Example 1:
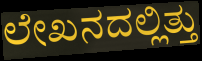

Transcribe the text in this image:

ಲೇಖನದಲ್ಲಿತ್ತು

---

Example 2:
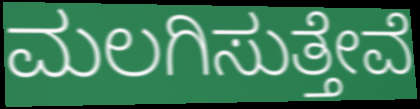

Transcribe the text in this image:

ಮಲಗಿಸುತ್ತೇವೆ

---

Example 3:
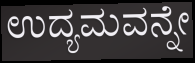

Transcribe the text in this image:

ಉದ್ಯಮವನ್ನೇ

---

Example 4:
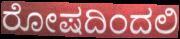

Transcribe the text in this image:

ರೋಷದಿಂದಲಿ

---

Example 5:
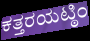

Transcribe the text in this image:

ಕತ್ತರಯಟ್ಠಿಂ